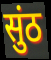
सुंठ